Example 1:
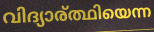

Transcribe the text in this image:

വിദ്യാര്ത്ഥിയെന്ന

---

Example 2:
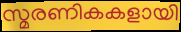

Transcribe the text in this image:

സ്മരണികകളായി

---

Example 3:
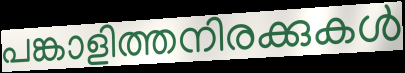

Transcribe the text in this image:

പങ്കാളിത്തനിരക്കുകൾ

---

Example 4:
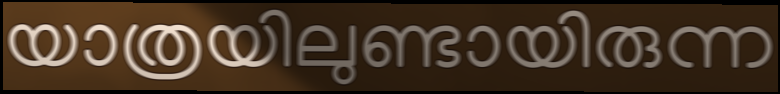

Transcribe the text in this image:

യാത്രയിലുണ്ടായിരുന്ന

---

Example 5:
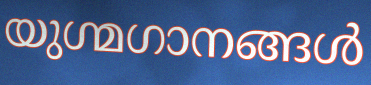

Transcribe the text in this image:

യുഗ്മഗാനങ്ങൾ